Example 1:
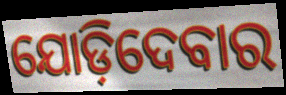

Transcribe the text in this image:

ଯୋଡ଼ିଦେବାର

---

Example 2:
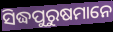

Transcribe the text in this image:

ସିଦ୍ଧପୁରୁଷମାନେ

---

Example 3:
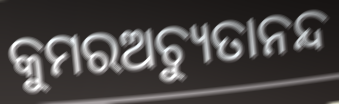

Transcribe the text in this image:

କୁମରଅଚ୍ୟୁତାନନ୍ଦ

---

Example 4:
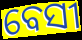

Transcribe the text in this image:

ବେସୀ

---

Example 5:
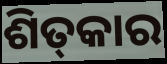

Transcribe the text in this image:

ଶିତ୍‍କାର